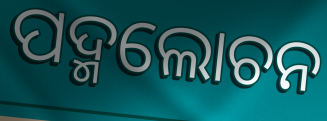
ପଦ୍ମଲୋଚନ